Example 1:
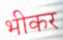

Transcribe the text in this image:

भीकर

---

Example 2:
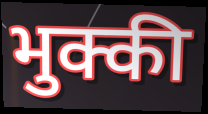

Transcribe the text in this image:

भुक्की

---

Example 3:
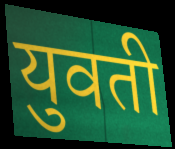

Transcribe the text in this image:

युवती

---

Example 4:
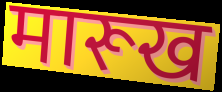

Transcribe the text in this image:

मारूख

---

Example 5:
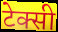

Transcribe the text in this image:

टेक्सी